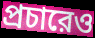
প্রচারেও